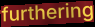
furthering